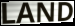
LAND